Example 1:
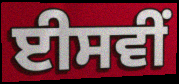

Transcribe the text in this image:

ਈਸਵੀਂ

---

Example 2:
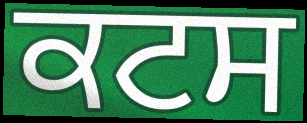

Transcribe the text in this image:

ਕਟਸ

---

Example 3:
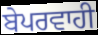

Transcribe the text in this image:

ਬੇਪਰਵਾਹੀ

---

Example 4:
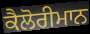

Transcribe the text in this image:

ਕੈਲੋਰੀਮਾਨ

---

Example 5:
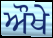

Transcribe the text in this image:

ਔਖੇ